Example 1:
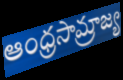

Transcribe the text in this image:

ఆంధ్రసామ్రాజ్య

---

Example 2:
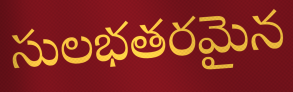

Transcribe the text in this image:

సులభతరమైన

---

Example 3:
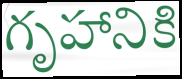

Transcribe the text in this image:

గృహానికి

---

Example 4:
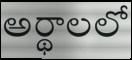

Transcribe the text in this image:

అర్థాలలో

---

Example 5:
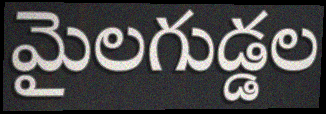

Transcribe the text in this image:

మైలగుడ్డల